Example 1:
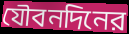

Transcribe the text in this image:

যৌবনদিনের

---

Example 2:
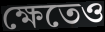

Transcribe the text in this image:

ক্ষেতেও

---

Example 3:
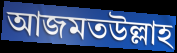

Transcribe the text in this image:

আজমতউল্লাহ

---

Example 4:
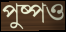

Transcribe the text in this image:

পুষ্পও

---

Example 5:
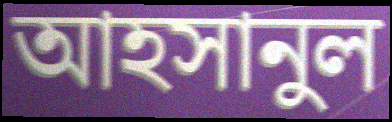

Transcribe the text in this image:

আহসানুল